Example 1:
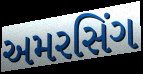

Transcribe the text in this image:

અમરસિંગ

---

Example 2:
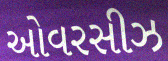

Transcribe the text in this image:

ઓવરસીઝ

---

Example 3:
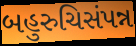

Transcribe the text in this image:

બહુરુચિસંપન્ન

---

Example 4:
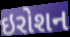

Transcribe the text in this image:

ઇરોશન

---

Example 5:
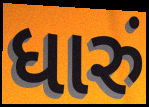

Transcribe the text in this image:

ધારું